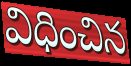
విధించిన